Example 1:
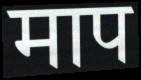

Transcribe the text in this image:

माप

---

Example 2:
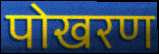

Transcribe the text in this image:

पोखरण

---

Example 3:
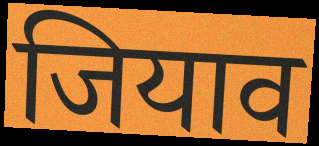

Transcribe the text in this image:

जियाव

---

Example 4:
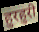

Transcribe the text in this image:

हुरहुरी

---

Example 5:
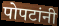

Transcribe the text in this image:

पोपटांनी